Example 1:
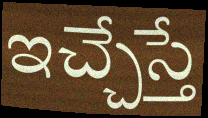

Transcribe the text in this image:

ఇచ్చేస్తే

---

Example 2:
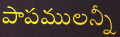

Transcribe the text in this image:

పాపములన్నీ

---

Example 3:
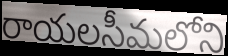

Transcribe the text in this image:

రాయలసీమలోని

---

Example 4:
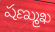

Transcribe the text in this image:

షణ్ముఖ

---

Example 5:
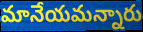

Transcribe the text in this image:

మానేయమన్నారు